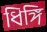
ধিঙ্গি